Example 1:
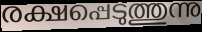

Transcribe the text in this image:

രക്ഷപ്പെടുത്തുന്നു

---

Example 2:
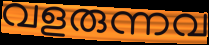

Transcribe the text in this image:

വളരുന്നവ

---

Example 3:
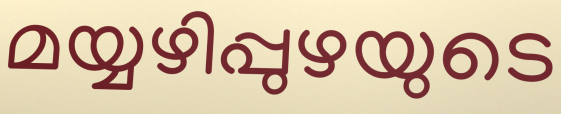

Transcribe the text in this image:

മയ്യഴിപ്പുഴയുടെ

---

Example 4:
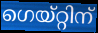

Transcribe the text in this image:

ഗെയ്റ്റിന്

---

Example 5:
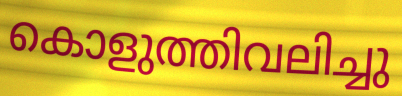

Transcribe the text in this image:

കൊളുത്തിവലിച്ചു